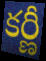
కర్ణీ